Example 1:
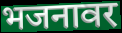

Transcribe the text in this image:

भजनावर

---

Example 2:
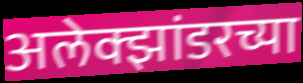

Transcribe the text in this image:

अलेक्झांडरच्या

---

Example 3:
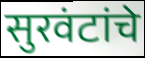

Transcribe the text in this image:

सुरवंटांचे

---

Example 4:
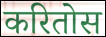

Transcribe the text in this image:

करितोस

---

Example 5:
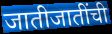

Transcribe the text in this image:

जातीजातींची